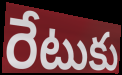
రేటుకు